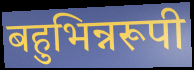
बहुभिन्नरूपी